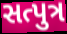
સત્પુત્ર